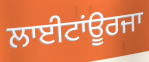
ਲਾਈਟਾਂਊਰਜਾ